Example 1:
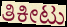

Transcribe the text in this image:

ತಿಕೀಟು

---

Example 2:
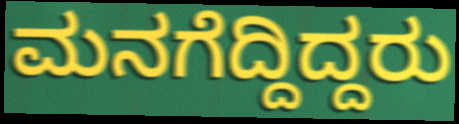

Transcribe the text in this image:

ಮನಗೆದ್ದಿದ್ದರು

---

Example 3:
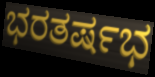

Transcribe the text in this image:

ಭರತರ್ಷಭ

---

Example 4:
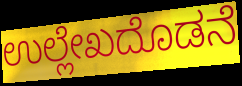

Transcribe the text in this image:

ಉಲ್ಲೇಖದೊಡನೆ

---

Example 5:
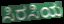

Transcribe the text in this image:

ಸಿರಸಿಯ